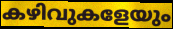
കഴിവുകളേയും